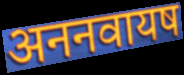
अननवायष